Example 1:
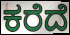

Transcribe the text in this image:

ಕರೆದೆ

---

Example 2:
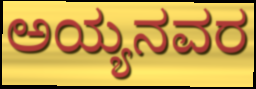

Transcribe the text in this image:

ಅಯ್ಯನವರ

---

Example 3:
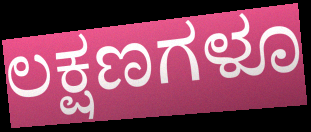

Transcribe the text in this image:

ಲಕ್ಷಣಗಳೂ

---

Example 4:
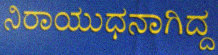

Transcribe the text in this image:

ನಿರಾಯುಧನಾಗಿದ್ದ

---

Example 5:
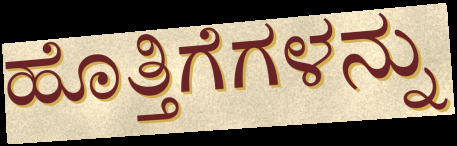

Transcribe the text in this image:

ಹೊತ್ತಿಗೆಗಳನ್ನು